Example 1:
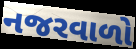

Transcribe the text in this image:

નજરવાળો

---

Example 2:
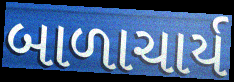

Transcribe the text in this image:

બાળાચાર્ય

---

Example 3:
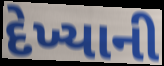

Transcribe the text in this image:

દેખ્યાની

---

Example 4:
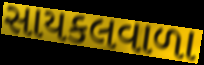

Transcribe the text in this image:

સાયકલવાળા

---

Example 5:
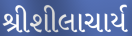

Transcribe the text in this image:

શ્રીશીલાચાર્ય